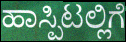
ಹಾಸ್ಪಿಟಲ್ಲಿಗೆ